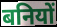
बनियों